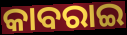
କାବରାଇ